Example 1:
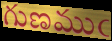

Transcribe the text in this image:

గుణముఁ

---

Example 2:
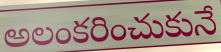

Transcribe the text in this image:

అలంకరించుకునే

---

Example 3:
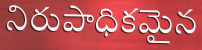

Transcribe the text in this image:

నిరుపాధికమైన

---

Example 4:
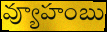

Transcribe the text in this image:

వ్యూహంబు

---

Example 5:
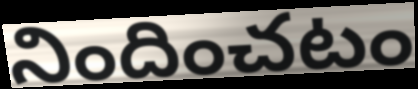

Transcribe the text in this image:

నిందించటం